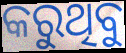
କରୁଥିବୁ